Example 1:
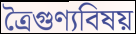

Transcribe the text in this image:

ত্রৈগুণ্যবিষয়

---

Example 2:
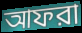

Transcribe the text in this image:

আফরা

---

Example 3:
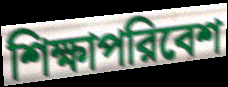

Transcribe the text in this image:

শিক্ষাপরিবেশ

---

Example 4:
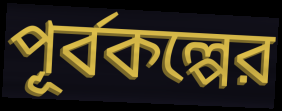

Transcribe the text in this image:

পূর্বকল্পের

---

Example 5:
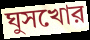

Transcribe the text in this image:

ঘুসখোর